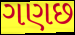
ગણછ